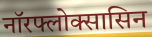
नॉरफ्लोक्सासिन